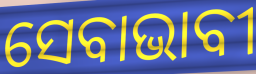
ସେବାଭାବୀ